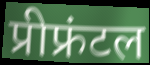
प्रीफ्रंटल